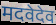
मदवेदेव